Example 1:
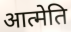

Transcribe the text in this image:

आत्मेति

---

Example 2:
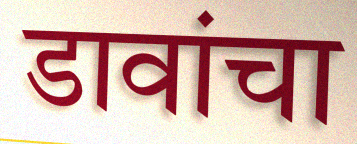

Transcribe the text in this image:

डावांचा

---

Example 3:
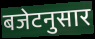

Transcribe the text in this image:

बजेटनुसार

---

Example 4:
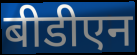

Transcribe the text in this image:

बीडीएन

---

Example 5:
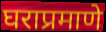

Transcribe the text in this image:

घराप्रमाणे